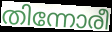
തിന്നോരീ